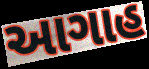
આગાહ